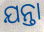
ଯନ୍ତା